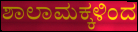
ಶಾಲಾಮಕ್ಕಳಿಂದ